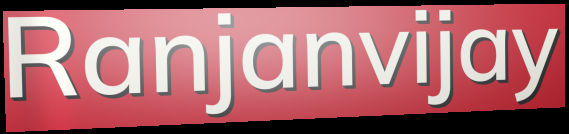
Ranjanvijay